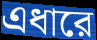
এধারে